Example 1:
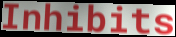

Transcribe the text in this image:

Inhibits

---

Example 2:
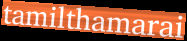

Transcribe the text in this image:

tamilthamarai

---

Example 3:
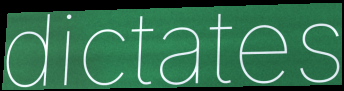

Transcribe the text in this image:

dictates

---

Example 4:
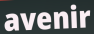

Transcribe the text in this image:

avenir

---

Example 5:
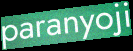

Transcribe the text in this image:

paranyoji